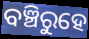
ବଞ୍ଚିରୁହେ